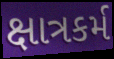
ક્ષાત્રકર્મ